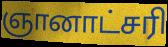
ஞானாட்சரி